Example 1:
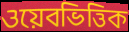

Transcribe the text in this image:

ওয়েবভিত্তিক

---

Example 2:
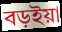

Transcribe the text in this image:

বড়ইয়া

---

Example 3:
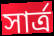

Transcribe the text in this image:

সার্ত্র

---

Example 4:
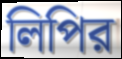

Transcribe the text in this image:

লিপির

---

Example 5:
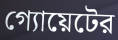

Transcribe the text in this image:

গ্যোয়েটের